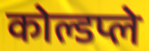
कोल्डप्ले